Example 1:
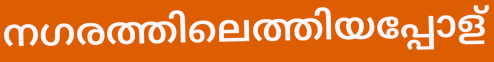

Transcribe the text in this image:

നഗരത്തിലെത്തിയപ്പോള്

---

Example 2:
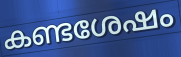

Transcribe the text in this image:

കണ്ടശേഷം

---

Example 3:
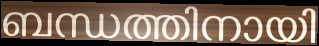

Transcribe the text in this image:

ബന്ധത്തിനായി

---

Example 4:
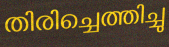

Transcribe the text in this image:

തിരിച്ചെത്തിച്ചു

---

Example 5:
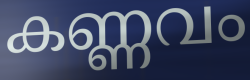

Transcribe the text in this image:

കണ്ണവം